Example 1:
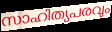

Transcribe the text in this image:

സാഹിത്യപരവും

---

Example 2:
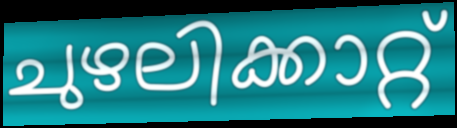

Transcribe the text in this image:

ചുഴലിക്കാറ്റ്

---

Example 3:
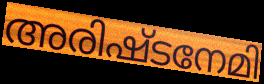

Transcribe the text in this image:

അരിഷ്ടനേമി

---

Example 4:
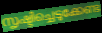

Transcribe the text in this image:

സൃഷ്ടിച്ചെടുക്കേണ്ട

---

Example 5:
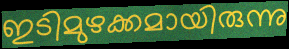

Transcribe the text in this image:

ഇടിമുഴക്കമായിരുന്നു